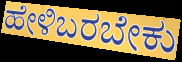
ಹೇಳಿಬರಬೇಕು